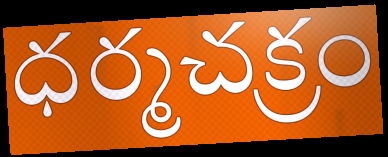
ధర్మచక్రం